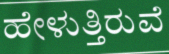
ಹೇಳುತ್ತಿರುವೆ